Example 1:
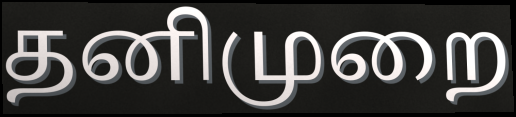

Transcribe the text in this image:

தனிமுறை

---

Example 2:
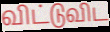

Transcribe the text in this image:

விட்டுவிட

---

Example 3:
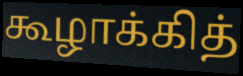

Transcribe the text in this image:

கூழாக்கித்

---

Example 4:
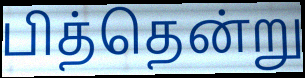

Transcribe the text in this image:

பித்தென்று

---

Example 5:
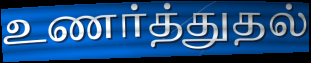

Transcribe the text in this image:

உணர்த்துதல்